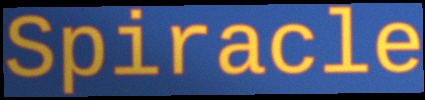
Spiracle